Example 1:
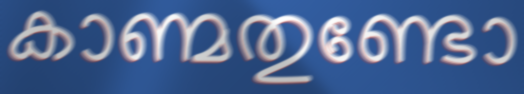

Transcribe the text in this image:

കാണ്മതുണ്ടോ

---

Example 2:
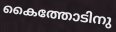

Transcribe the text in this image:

കൈത്തോടിനു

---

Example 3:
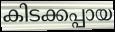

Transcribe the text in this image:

കിടക്കപ്പായ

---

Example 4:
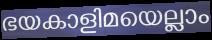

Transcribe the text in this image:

ഭയകാളിമയെല്ലാം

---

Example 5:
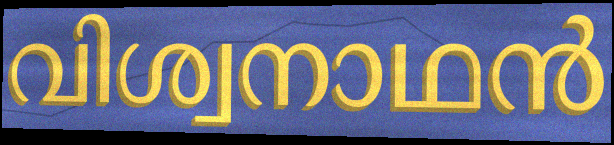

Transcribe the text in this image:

വിശ്വനാഥൻ